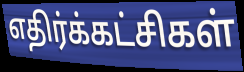
எதிர்க்கட்சிகள்